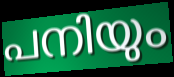
പനിയും